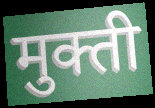
मुक्ती